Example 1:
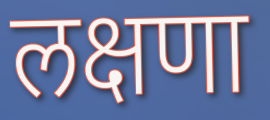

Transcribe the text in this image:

लक्षणा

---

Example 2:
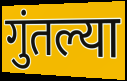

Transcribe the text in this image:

गुंतल्या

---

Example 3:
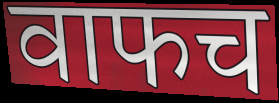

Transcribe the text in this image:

वाफच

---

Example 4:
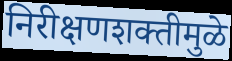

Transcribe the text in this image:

निरीक्षणशक्तीमुळे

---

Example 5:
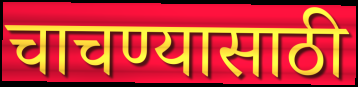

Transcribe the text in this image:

चाचण्यासाठी